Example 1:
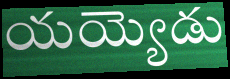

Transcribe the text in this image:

యయ్యెడు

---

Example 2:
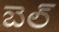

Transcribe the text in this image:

బెల్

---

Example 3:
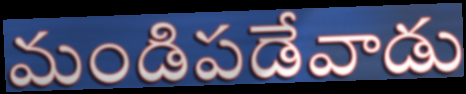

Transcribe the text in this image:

మండిపడేవాడు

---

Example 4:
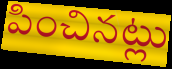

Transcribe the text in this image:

పించినట్లు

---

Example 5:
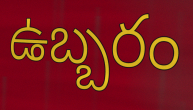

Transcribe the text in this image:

ఉబ్బరం